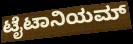
ಟೈಟಾನಿಯಮ್